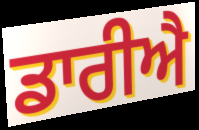
ਡਾਰੀਐ